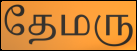
தேமரு